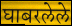
घाबरलेले